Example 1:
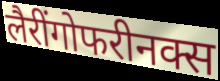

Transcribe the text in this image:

लैरींगोफरीनक्स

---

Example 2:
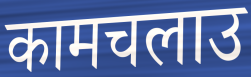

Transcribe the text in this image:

कामचलाउ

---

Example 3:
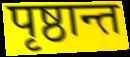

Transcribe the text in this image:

पृष्ठान्त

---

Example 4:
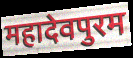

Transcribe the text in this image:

महादेवपुरम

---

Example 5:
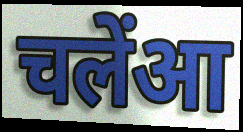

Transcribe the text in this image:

चलेंआ